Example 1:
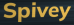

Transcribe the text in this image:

Spivey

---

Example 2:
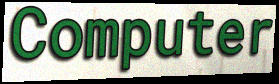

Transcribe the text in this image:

Computer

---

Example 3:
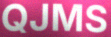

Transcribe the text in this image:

QJMS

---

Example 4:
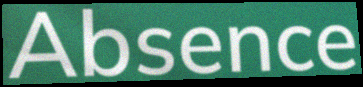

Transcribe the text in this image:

Absence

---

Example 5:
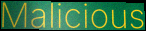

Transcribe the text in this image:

Malicious